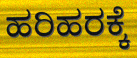
ಹರಿಹರಕ್ಕೆ